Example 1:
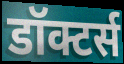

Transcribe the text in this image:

डॉक्टर्स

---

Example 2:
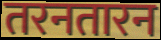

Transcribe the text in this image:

तरनतारन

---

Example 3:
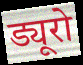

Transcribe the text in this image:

ड्यूरो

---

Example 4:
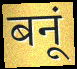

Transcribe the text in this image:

बनूं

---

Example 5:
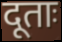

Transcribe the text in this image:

दूताः